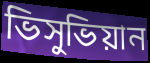
ভিসুভিয়ান